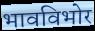
भावविभोर